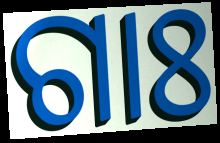
ଗାଃ